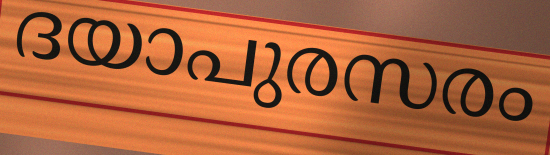
ദയാപുരസരം